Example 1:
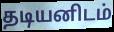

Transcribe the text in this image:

தடியனிடம்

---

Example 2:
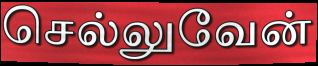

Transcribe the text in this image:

செல்லுவேன்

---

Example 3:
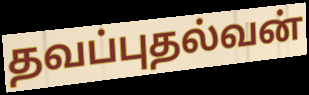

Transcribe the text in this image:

தவப்புதல்வன்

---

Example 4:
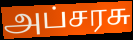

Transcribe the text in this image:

அப்சரசு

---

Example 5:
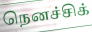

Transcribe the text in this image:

நெனச்சிக்